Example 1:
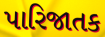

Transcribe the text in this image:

પારિજાતક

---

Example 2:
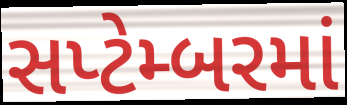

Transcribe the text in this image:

સપ્ટેમ્બરમાં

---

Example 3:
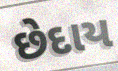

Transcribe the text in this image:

છેદાય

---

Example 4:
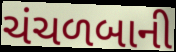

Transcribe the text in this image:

ચંચળબાની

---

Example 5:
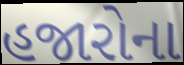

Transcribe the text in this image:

હજારોના